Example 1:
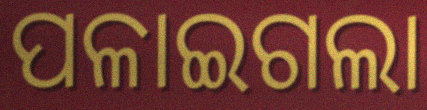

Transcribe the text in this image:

ପଳାଇଗଲା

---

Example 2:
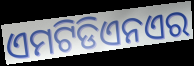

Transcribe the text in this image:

ଏମଟିଡିଏନଏର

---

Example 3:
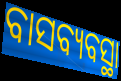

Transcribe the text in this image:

ବାସବ୍ୟବସ୍ଥା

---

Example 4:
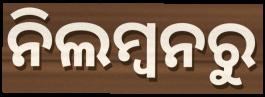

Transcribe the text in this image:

ନିଲମ୍ବନରୁ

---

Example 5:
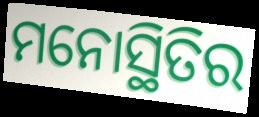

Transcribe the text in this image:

ମନୋସ୍ଥିତିର